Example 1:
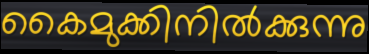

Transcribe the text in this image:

കൈമുക്കിനിൽക്കുന്നു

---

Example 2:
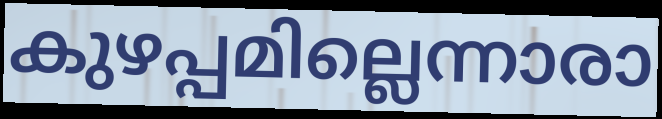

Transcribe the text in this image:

കുഴപ്പമില്ലെന്നാരാ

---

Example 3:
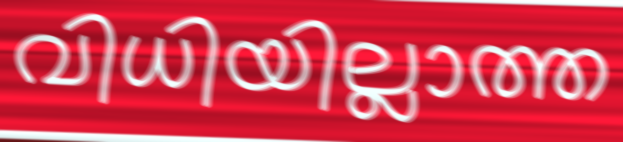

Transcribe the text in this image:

വിധിയില്ലാത്ത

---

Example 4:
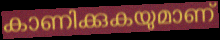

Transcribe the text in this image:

കാണിക്കുകയുമാണ്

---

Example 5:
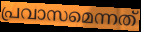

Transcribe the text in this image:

പ്രവാസമെന്നത്